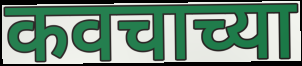
कवचाच्या